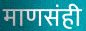
माणसंही